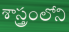
శాస్త్రంలోని